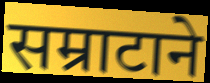
सम्राटाने